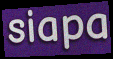
siapa